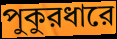
পুকুরধারে